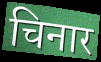
चिनार